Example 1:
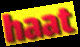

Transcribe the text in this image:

haat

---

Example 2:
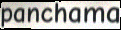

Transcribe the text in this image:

panchama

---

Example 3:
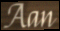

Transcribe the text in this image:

Aan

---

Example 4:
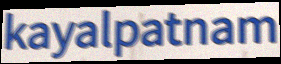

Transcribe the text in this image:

kayalpatnam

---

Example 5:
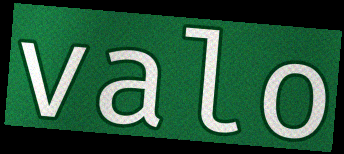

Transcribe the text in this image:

valo